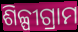
ଶିଳ୍ପୀଗ୍ରାମ